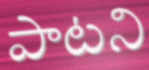
పాటని